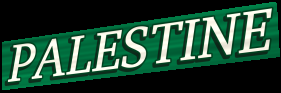
PALESTINE